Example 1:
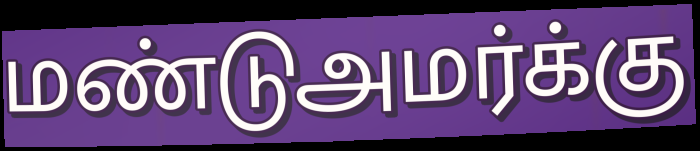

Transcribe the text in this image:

மண்டுஅமர்க்கு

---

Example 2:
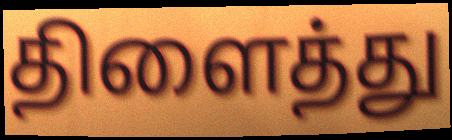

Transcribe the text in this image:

திளைத்து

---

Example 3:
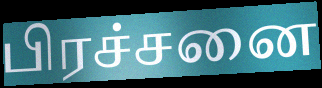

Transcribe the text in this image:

பிரச்சனை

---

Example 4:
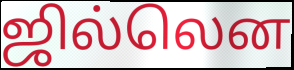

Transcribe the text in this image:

ஜில்லென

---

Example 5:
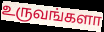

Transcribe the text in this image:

உருவங்களா